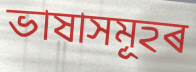
ভাষাসমূহৰ